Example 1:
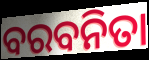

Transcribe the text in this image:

ବରବନିତା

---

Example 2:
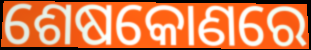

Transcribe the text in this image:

ଶେଷକୋଣରେ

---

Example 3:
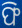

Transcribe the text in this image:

ଫି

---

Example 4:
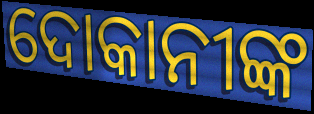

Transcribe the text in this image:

ଦୋକାନୀଙ୍କ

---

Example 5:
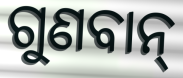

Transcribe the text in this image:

ଗୁଣବାନ୍